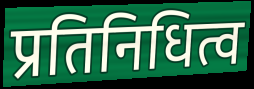
प्रतिनिधित्व